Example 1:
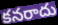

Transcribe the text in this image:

కనరాదు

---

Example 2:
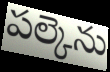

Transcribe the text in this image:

పల్కెను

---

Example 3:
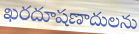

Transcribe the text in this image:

ఖరదూషణాదులను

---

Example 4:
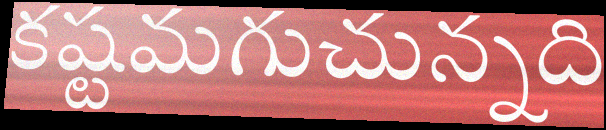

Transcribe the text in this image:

కష్టమగుచున్నది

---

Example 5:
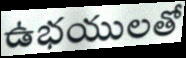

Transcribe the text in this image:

ఉభయులతో